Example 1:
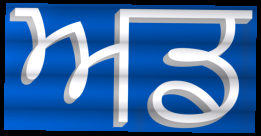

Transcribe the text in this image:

ਅਡ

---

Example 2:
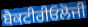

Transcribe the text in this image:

ਬੈਕਟੀਰੀਓਲੋਜੀ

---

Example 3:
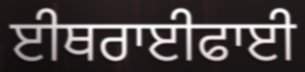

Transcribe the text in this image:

ਈਥਰਾਈਫਾਈ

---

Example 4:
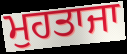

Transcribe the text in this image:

ਮੁਹਤਾਜਾ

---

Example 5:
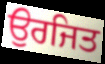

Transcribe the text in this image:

ਉਰਜਿਤ